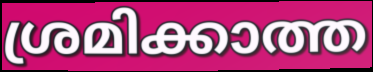
ശ്രമിക്കാത്ത